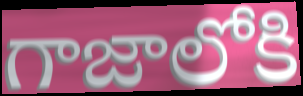
గాజాలోకి